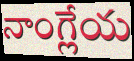
నాంగ్లేయ